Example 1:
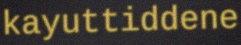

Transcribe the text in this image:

kayuttiddene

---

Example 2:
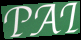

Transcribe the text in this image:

PAI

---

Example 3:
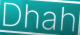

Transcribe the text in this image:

Dhah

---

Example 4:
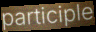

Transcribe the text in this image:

participle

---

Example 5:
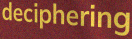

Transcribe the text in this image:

deciphering